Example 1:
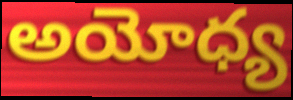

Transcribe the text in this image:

అయోధ్య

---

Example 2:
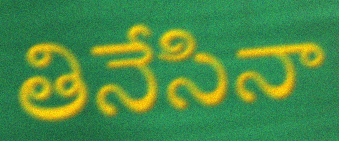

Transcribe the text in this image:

తినేసినా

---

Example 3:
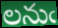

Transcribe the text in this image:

లనుఁ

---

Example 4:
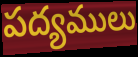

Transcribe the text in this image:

పద్యములు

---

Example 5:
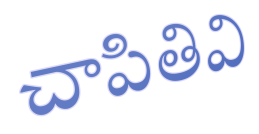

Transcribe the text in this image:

చాపితివి